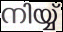
നിയ്യ്